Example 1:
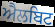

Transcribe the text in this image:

ਐਲਬਿਟ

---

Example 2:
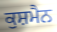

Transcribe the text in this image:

ਕੁਸ਼ਮੈਨ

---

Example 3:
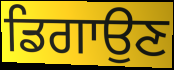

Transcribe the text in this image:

ਡਿਗਾਉਣ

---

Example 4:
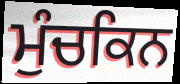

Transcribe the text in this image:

ਮੁੰਚਕਿਨ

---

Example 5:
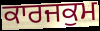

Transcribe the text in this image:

ਕਾਰਜਕੁਮ